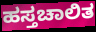
ಹಸ್ತಚಾಲಿತ